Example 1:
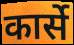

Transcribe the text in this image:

कार्से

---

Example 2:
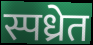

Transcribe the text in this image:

स्पध्रेत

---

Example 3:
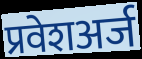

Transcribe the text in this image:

प्रवेशअर्ज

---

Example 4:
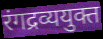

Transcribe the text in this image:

रंगद्रव्ययुक्त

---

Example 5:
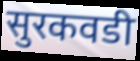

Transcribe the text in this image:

सुरकवडी